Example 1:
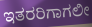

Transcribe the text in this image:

ಇತರರಿಗಾಗಲೀ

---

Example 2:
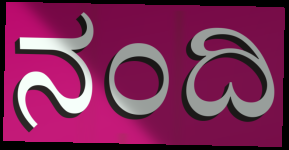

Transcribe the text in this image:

ನಂದಿ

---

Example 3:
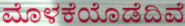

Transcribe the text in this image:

ಮೊಳಕೆಯೊಡೆದಿವೆ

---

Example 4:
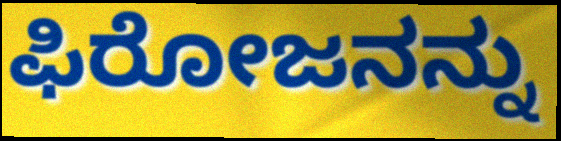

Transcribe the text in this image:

ಫಿರೋಜನನ್ನು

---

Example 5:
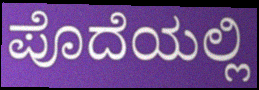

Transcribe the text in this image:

ಪೊದೆಯಲ್ಲಿ